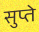
सुप्ते